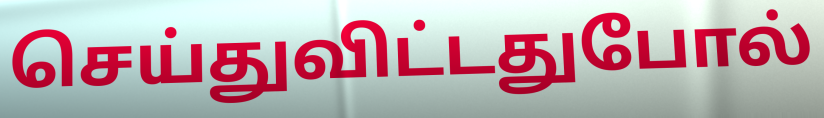
செய்துவிட்டதுபோல்